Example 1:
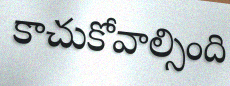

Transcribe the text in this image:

కాచుకోవాల్సింది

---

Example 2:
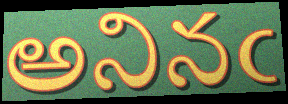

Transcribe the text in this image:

అనినఁ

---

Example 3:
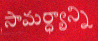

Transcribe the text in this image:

సామర్ధ్యాన్ని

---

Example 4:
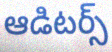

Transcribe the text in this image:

ఆడిటర్స్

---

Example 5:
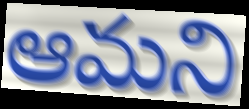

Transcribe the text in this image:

ఆమని